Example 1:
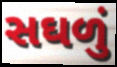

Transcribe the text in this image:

સઘળું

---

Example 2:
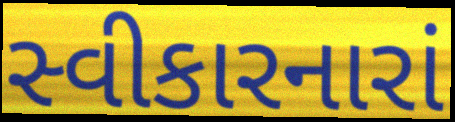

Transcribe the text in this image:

સ્વીકારનારાં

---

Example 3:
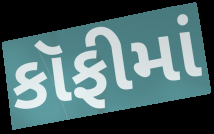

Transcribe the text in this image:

કૉફીમાં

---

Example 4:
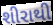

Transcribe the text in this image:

શીરાથી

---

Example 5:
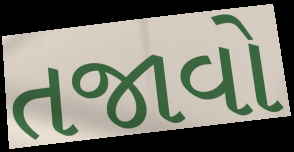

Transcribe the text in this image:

તજાવો